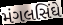
મંગલસિંઘે